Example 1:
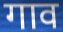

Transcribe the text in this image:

गाव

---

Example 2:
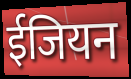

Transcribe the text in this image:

ईजियन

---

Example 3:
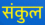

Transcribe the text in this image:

संकुल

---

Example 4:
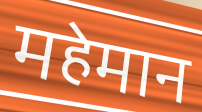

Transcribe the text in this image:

महेमान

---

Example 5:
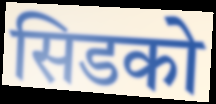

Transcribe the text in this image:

सिडको